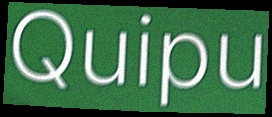
Quipu